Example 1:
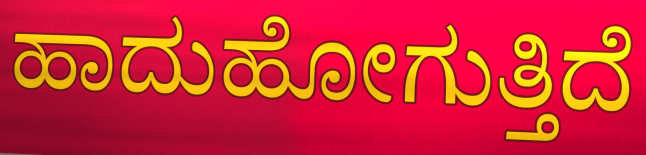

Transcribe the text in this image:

ಹಾದುಹೋಗುತ್ತಿದೆ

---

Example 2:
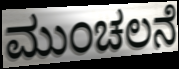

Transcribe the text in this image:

ಮುಂಚಲನೆ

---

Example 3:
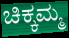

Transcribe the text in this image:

ಚಿಕ್ಕಮ್ಮ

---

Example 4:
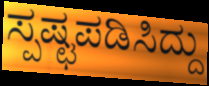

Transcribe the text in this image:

ಸ್ಪಷ್ಟಪಡಿಸಿದ್ದು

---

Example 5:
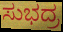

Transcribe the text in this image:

ಸುಭದ್ರ